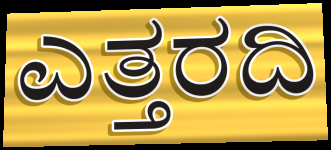
ಎತ್ತರದಿ